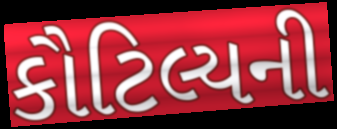
કૌટિલ્યની